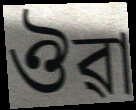
ঔৱা